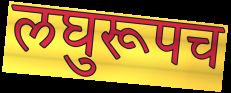
लघुरूपच